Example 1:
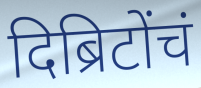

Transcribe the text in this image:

दिब्रिटोंचं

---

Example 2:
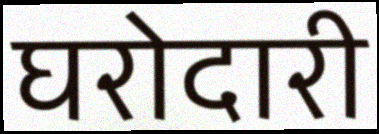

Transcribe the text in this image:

घरोदारी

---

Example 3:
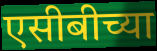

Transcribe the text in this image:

एसीबीच्या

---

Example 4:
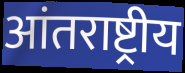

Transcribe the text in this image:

आंतराष्ट्रीय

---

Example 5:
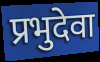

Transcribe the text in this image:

प्रभुदेवा